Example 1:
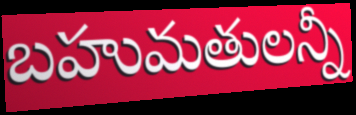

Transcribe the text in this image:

బహుమతులన్నీ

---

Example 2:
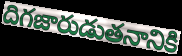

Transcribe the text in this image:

దిగజారుడుతనానికి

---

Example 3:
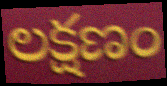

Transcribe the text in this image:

లక్షణం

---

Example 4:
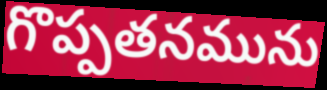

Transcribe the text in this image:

గొప్పతనమును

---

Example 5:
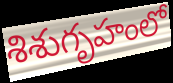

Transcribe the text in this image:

శిశుగృహంలో